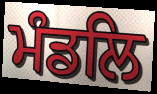
ਮੰਡਲਿ